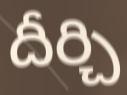
దీర్చి